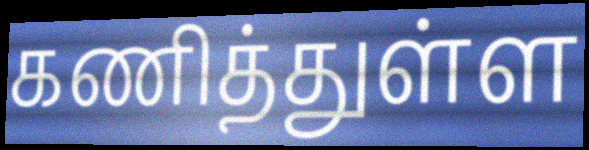
கணித்துள்ள